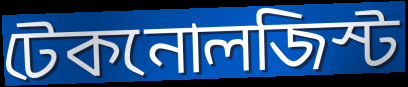
টেকনোলজিস্ট